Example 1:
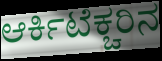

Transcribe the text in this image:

ಆರ್ಕಿಟೆಕ್ಚರಿನ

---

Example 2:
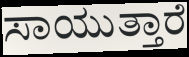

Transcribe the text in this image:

ಸಾಯುತ್ತಾರೆ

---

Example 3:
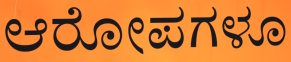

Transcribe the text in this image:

ಆರೋಪಗಳೂ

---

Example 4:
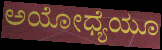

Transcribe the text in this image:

ಅಯೋಧ್ಯೆಯೂ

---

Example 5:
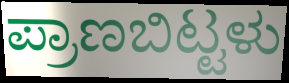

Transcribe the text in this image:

ಪ್ರಾಣಬಿಟ್ಟಳು